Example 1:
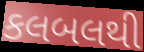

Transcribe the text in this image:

કલબલથી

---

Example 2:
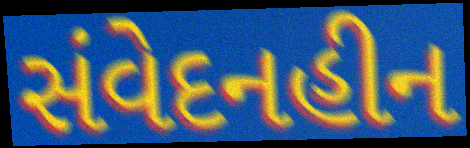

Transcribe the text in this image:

સંવેદનહીન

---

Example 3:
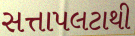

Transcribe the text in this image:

સત્તાપલટાથી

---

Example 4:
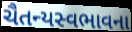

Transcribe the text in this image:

ચૈતન્યસ્વભાવના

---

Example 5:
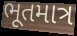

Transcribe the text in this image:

ભૂતમાત્ર